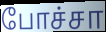
போச்சா